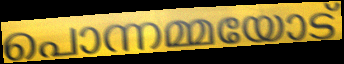
പൊന്നമ്മയോട്